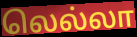
லெல்லா